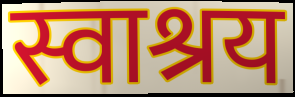
स्वाश्रय